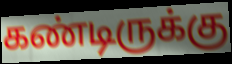
கண்டிருக்கு